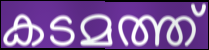
കടമത്ത്